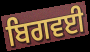
ਬਿਗਵਈ